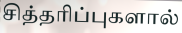
சித்தரிப்புகளால்